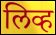
लिव्ह